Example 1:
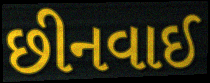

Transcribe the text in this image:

છીનવાઈ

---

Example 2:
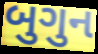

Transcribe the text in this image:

બુગુન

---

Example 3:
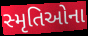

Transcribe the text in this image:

સ્મૃતિઓના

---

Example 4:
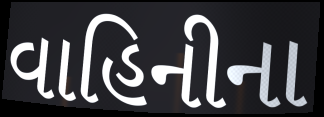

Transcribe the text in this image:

વાહિનીના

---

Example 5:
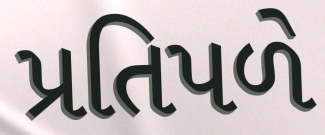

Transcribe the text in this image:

પ્રતિપળે